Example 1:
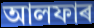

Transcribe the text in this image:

আলফাৰ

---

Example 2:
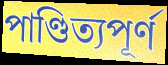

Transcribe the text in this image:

পাণ্ডিত্যপূৰ্ণ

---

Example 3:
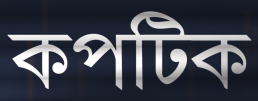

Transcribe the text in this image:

কপটিক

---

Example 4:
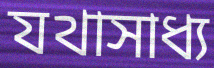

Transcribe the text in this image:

যথাসাধ্য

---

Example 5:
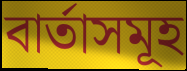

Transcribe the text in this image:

বাৰ্তাসমূহ